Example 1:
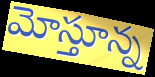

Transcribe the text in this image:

మోస్తూన్న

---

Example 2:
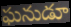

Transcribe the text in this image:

ఘనుడూ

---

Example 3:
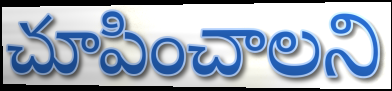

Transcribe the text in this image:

చూపించాలని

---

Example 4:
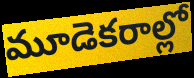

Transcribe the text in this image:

మూడెకరాల్లో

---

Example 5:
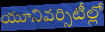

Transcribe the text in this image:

యూనివర్సిటీల్లో